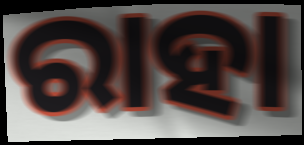
ରାହା